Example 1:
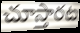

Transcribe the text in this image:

చూస్తారట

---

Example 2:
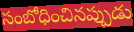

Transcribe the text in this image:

సంబోధించినప్పుడు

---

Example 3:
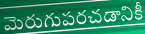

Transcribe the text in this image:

మెరుగుపరచడానికీ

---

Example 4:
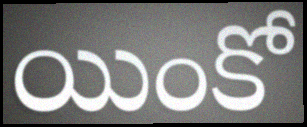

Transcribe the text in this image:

యింకో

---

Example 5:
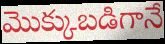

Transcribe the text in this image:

మొక్కుబడిగానే